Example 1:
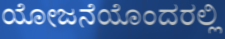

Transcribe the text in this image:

ಯೋಜನೆಯೊಂದರಲ್ಲಿ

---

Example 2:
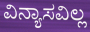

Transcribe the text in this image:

ವಿನ್ಯಾಸವಿಲ್ಲ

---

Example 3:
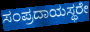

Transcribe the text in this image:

ಸಂಪ್ರದಾಯಸ್ಥರೇ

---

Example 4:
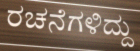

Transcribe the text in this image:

ರಚನೆಗಳಿದ್ದು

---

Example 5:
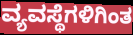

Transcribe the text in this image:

ವ್ಯವಸ್ಥೆಗಳಿಗಿಂತ